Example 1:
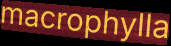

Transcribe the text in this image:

macrophylla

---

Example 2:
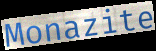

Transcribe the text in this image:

Monazite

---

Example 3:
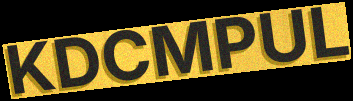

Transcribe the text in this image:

KDCMPUL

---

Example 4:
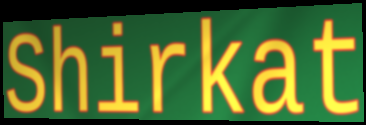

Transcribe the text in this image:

Shirkat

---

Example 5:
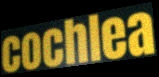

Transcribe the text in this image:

cochlea